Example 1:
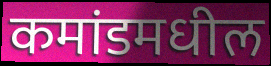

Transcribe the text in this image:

कमांडमधील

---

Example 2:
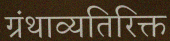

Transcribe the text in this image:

ग्रंथाव्यतिरिक्त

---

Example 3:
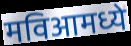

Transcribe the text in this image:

मविआमध्ये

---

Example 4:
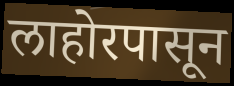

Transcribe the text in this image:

लाहोरपासून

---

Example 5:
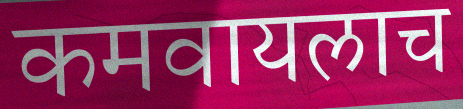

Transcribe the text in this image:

कमवायलाच